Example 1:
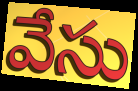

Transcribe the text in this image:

వేసు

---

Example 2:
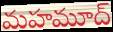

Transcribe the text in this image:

మహమూద్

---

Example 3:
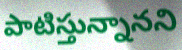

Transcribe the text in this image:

పాటిస్తున్నానని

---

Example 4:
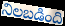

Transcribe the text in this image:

నిలబడింది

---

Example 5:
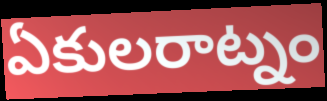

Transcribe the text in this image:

ఏకులరాట్నం